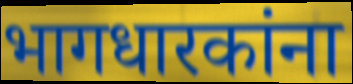
भागधारकांना